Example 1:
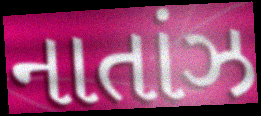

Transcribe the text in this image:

નાતાંઝ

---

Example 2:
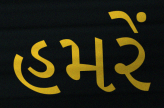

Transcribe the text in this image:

હમરેં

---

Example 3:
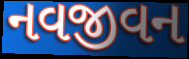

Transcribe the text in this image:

નવજીવન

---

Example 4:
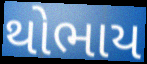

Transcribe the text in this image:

થોભાય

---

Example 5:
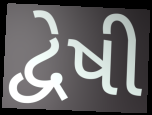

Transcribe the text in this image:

દ્વેષી